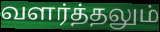
வளர்த்தலும்